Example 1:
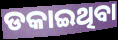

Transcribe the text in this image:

ଡକାଇଥିବା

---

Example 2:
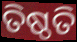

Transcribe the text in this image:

ତିଷ୍ଠତି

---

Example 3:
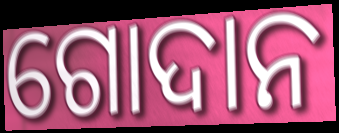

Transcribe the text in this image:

ଗୋଦାନ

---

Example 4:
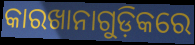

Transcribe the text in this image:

କାରଖାନାଗୁଡ଼ିକରେ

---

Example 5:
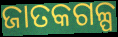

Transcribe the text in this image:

ଜାତକଗଳ୍ପ